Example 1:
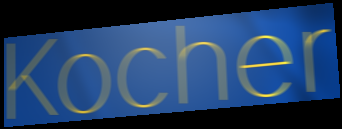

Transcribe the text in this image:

Kocher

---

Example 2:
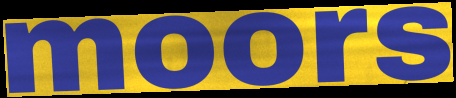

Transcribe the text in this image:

moors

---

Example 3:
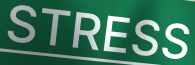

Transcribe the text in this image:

STRESS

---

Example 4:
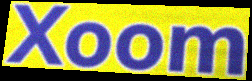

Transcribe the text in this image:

Xoom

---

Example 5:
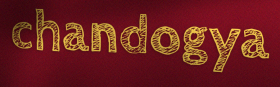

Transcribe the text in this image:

chandogya